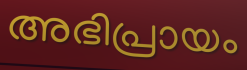
അഭിപ്രായം